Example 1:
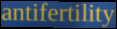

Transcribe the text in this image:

antifertility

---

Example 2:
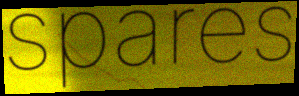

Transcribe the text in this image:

spares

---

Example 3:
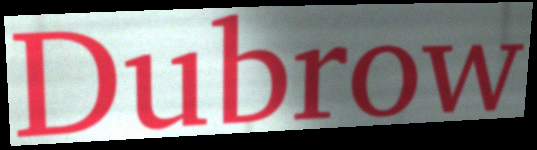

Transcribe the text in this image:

Dubrow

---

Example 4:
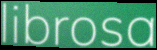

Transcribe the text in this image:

librosa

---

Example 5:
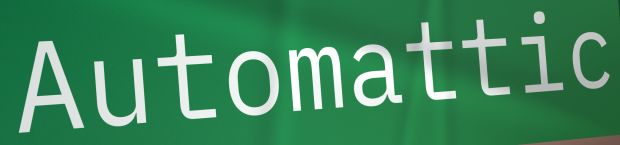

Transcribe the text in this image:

Automattic